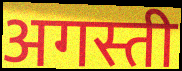
अगस्ती